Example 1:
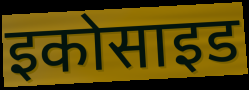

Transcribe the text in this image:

इकोसाइड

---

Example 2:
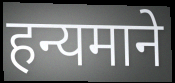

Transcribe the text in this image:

हन्यमाने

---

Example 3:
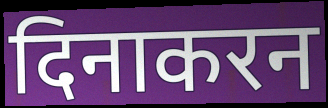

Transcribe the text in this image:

दिनाकरन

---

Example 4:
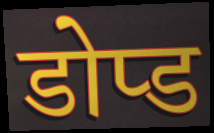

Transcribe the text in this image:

डोप्ड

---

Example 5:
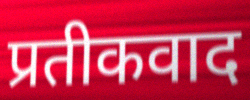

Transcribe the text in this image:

प्रतीकवाद